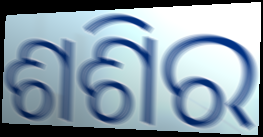
ଶଶିର